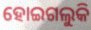
ହୋଇଗଲୁକି